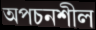
অপচনশীল